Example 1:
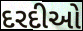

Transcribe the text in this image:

દરદીઓ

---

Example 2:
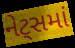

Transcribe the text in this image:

નેટ્સમાં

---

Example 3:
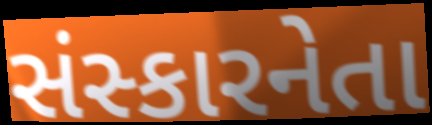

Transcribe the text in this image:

સંસ્કારનેતા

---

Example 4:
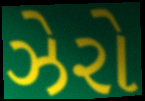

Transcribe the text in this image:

ઝેરો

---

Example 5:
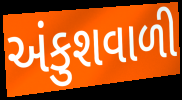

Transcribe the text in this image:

અંકુશવાળી